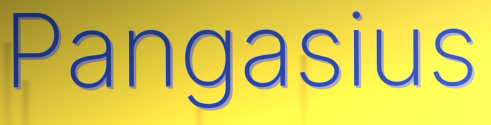
Pangasius